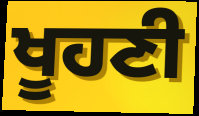
ਖੂਹਣੀ